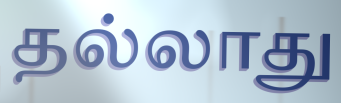
தல்லாது